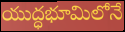
యుద్ధభూమిలోనే